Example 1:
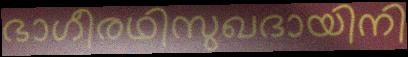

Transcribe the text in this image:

ഭാഗീരഥിസുഖദായിനി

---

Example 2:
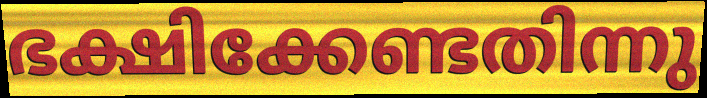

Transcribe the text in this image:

ഭക്ഷിക്കേണ്ടതിന്നു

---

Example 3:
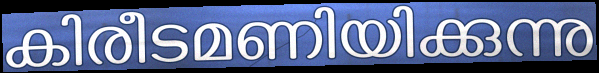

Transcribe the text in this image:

കിരീടമണിയിക്കുന്നു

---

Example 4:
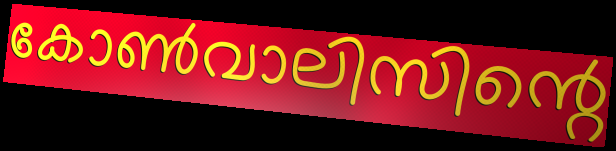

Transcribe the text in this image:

കോൺവാലിസിന്റെ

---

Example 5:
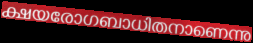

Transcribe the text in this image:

ക്ഷയരോഗബാധിതനാണെന്നു